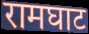
रामघाट